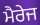
ਮੈਰੇਜ